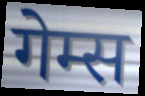
गेम्स